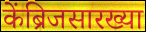
केंब्रिजसारख्या